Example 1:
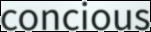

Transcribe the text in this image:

concious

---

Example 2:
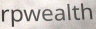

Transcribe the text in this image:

rpwealth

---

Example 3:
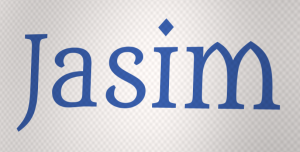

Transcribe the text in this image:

Jasim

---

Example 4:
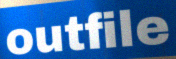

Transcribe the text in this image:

outfile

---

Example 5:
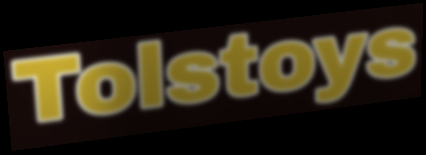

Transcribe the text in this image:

Tolstoys